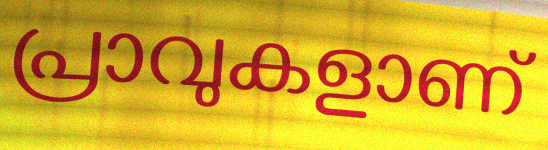
പ്രാവുകളാണ്